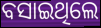
ବସାଇଥିଲେ